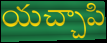
యచ్చాపి